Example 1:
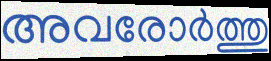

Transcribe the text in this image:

അവരോർത്തു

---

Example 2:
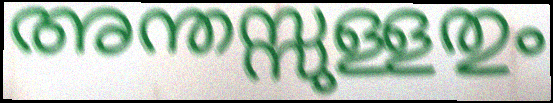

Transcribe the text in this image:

അന്തസ്സുള്ളതും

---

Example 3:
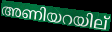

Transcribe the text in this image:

അണിയറയില്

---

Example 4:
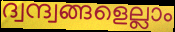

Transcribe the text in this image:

ദ്വന്ദ്വങ്ങളെല്ലാം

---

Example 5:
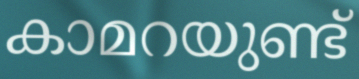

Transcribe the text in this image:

കാമറയുണ്ട്